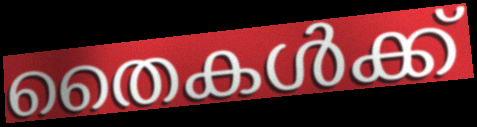
തൈകൾക്ക്